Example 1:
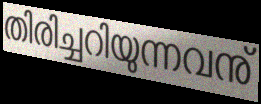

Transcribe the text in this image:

തിരിച്ചറിയുന്നവനു്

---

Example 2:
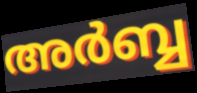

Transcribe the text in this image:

അർബ്ബ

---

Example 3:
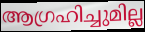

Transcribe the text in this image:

ആഗ്രഹിച്ചുമില്ല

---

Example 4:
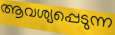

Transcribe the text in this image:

ആവശ്യപ്പെടുന്ന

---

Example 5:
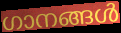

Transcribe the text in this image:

ഗാനങ്ങൾ